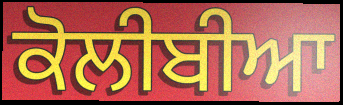
ਕੋਲੀਬੀਆ